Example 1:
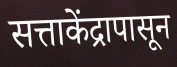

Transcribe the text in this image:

सत्ताकेंद्रापासून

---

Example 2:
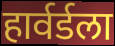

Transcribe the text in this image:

हार्वर्डला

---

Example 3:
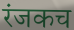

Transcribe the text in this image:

रंजकच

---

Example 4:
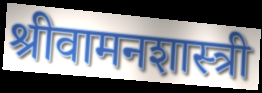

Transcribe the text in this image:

श्रीवामनशास्त्री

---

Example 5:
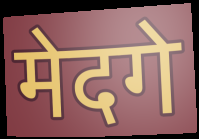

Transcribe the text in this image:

मेदगे